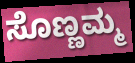
ಸೊಣ್ಣಮ್ಮ